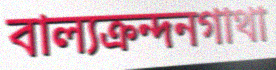
বাল্যক্রন্দনগাথা